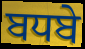
ਬਧਬੇ